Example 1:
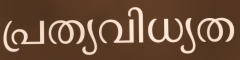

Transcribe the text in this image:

പ്രത്യവിധ്യത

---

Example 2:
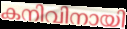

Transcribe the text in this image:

കനിവിനായി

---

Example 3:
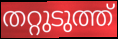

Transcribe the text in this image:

തറ്റുടുത്ത്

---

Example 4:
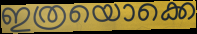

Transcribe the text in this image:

ഇത്രയൊക്കെ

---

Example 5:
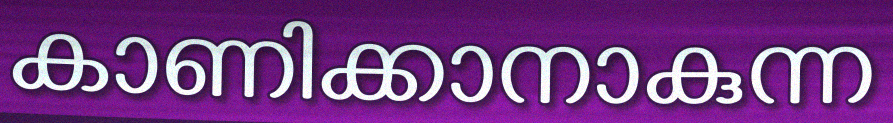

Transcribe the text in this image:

കാണിക്കാനാകുന്ന